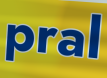
pral